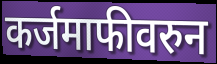
कर्जमाफीवरुन